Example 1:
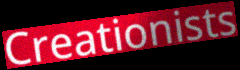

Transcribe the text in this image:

Creationists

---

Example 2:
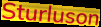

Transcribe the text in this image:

Sturluson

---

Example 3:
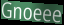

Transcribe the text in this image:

Gnoeee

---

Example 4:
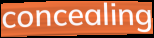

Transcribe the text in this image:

concealing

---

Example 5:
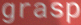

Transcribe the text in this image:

grasp